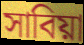
সাবিয়া